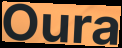
Oura